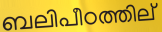
ബലിപീഠത്തില്